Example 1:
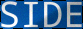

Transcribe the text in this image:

SIDE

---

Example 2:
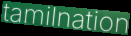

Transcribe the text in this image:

tamilnation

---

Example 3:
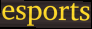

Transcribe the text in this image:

esports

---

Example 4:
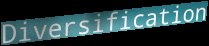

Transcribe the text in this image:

Diversification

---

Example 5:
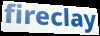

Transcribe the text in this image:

fireclay